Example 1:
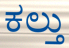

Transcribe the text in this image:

ಕಲ್ತು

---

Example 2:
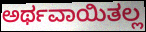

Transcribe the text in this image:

ಅರ್ಥವಾಯಿತಲ್ಲ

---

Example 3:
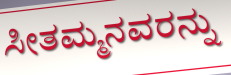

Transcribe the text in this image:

ಸೀತಮ್ಮನವರನ್ನು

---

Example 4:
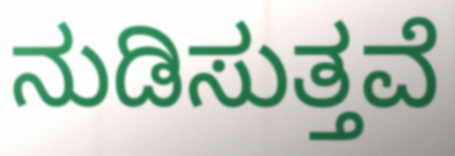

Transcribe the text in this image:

ನುಡಿಸುತ್ತವೆ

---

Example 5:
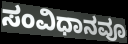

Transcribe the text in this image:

ಸಂವಿಧಾನವೂ